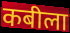
कबीला